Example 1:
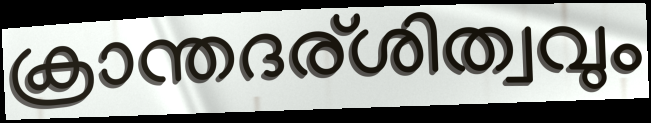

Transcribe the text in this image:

ക്രാന്തദര്ശിത്വവും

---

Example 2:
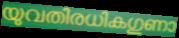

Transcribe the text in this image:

യുവതിരധികഗുണാ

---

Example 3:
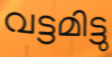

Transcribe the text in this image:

വട്ടമിട്ടു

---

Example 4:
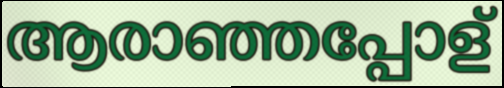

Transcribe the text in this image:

ആരാഞ്ഞപ്പോള്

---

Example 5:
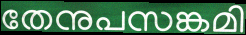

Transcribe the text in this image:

തേനുപസങ്കമി